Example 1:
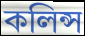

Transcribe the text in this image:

কলিন্স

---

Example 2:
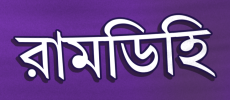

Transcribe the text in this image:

রামডিহি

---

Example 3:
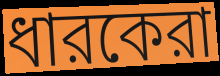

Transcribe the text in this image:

ধারকেরা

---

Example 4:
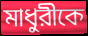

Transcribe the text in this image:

মাধুরীকে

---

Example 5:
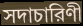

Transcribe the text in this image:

সদাচারিণী